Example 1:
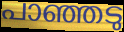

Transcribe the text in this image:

പാഞ്ഞടു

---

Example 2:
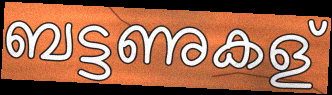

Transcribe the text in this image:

ബട്ടണുകള്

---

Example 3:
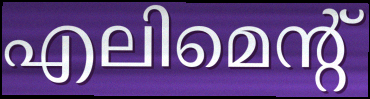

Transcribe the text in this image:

എലിമെന്റ്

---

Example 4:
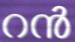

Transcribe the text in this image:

റൻ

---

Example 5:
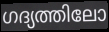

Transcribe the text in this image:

ഗദ്യത്തിലോ